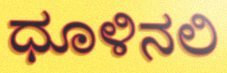
ಧೂಳಿನಲಿ